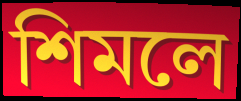
শিমলে